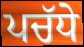
ਪਚੱਧੇ